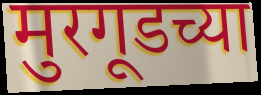
मुरगूडच्या